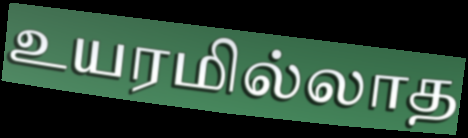
உயரமில்லாத